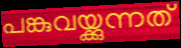
പങ്കുവയ്ക്കുന്നത്